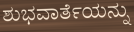
ಶುಭವಾರ್ತೆಯನ್ನು